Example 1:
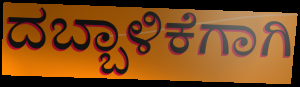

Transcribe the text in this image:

ದಬ್ಬಾಳಿಕೆಗಾಗಿ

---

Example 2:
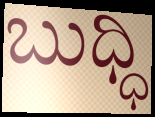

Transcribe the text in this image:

ಬುಧ್ಧಿ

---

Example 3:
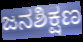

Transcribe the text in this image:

ಜನಶಿಕ್ಷಣ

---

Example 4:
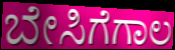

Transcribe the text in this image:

ಬೇಸಿಗೆಗಾಲ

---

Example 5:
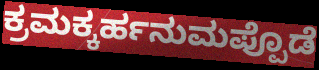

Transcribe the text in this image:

ಕ್ರಮಕ್ಕರ್ಹನುಮಪ್ಪೊಡೆ